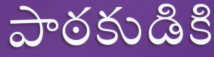
పాఠకుడికి